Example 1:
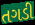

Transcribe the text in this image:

તગડી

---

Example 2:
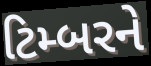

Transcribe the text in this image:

ટિમ્બરને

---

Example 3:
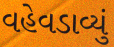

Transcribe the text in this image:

વહેવડાવ્યું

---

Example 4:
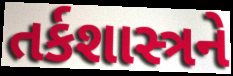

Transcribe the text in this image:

તર્કશાસ્ત્રને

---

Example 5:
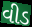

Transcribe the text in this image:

વીડ